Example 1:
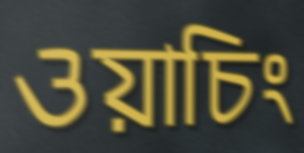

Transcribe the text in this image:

ওয়াচিং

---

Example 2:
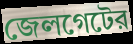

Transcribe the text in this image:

জেলগেটের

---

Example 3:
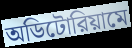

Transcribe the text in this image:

অডিটোরিয়ামে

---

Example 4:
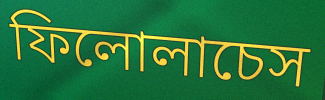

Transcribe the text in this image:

ফিলোলাচেস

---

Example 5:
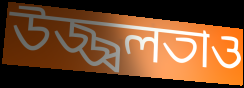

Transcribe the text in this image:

উজ্জ্বলতাও